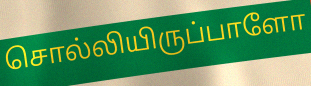
சொல்லியிருப்பாளோ